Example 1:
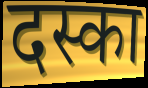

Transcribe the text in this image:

दस्का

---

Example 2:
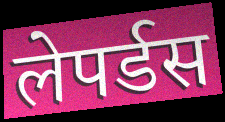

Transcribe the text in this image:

लेपर्डस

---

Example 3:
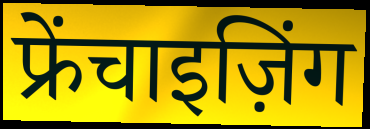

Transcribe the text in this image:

फ्रेंचाइज़िंग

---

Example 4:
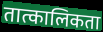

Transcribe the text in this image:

तात्कालिकता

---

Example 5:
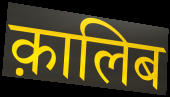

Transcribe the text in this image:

क़ालिब